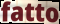
fatto